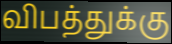
விபத்துக்கு